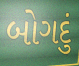
બોગદું